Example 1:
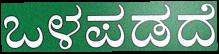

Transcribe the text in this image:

ಒಳಪಡದೆ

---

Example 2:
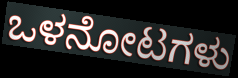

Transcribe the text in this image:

ಒಳನೋಟಗಳು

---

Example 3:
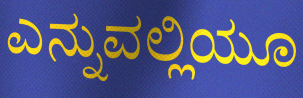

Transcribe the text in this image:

ಎನ್ನುವಲ್ಲಿಯೂ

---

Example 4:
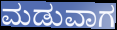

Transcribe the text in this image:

ಮಡುವಾಗ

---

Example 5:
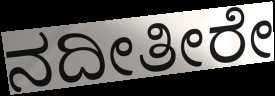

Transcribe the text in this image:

ನದೀತೀರೇ